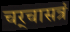
चर्चासत्रं